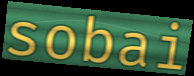
sobai